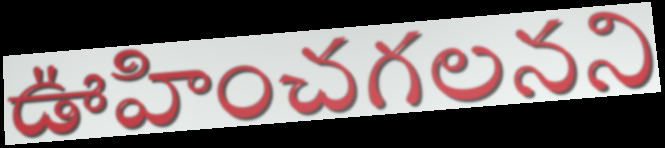
ఊహించగలనని